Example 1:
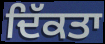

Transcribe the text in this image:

ਦਿੱਕਤਾ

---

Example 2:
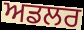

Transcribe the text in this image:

ਅਡਲਰ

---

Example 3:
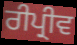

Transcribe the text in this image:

ਰੀਪ੍ਰੀਵ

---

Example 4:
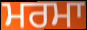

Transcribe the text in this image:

ਮਰਮਾ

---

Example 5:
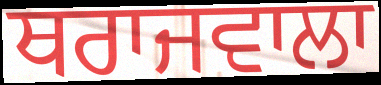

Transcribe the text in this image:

ਥਰਾਜਵਾਲਾ